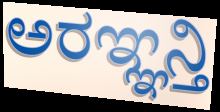
ಅರಞ್ಞನ್ತಿ